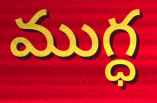
ముగ్ధ